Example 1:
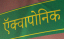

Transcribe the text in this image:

ऍक्वापोनिक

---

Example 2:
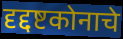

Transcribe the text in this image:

दृद्दष्टकोनाचे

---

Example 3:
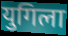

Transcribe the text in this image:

युगिला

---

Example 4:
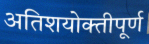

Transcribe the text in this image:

अतिशयोक्तीपूर्ण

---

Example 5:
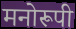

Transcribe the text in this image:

मनोरूपी